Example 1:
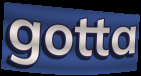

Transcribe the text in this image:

gotta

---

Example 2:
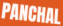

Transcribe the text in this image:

PANCHAL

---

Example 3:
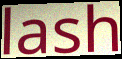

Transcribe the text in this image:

lash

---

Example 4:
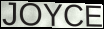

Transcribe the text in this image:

JOYCE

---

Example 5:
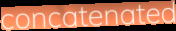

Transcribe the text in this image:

concatenated